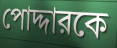
পোদ্দারকে